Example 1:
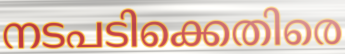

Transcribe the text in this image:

നടപടിക്കെതിരെ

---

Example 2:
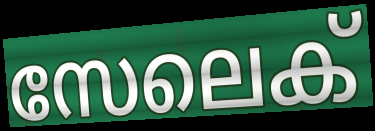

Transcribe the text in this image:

സേലെക്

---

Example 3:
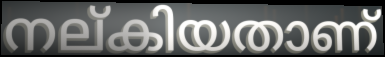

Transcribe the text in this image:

നല്കിയതാണ്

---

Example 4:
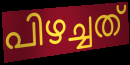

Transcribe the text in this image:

പിഴച്ചത്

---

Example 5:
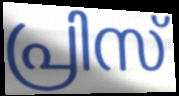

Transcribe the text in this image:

പ്രിസ്